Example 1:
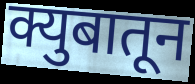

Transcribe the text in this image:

क्युबातून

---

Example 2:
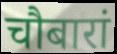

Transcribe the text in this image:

चौबारां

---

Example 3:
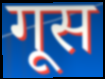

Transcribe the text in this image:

गूस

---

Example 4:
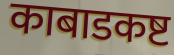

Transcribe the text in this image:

काबाडकष्ट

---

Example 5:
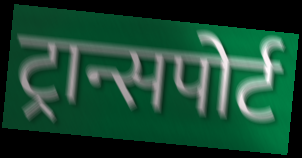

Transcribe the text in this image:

ट्रान्सपोर्ट